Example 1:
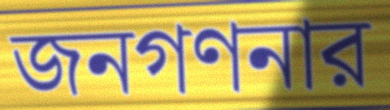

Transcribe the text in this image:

জনগণনার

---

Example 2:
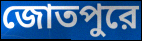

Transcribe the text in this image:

জোতপুরে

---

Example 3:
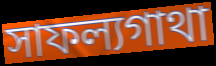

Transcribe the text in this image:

সাফল্যগাথা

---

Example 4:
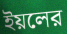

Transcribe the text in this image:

ইয়লের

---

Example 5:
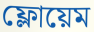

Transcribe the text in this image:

ফ্লোয়েম